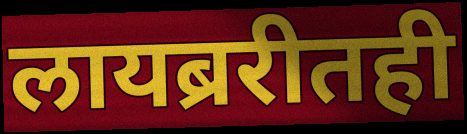
लायब्ररीतही